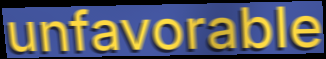
unfavorable